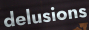
delusions